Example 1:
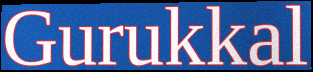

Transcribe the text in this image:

Gurukkal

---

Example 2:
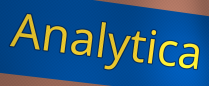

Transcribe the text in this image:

Analytica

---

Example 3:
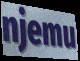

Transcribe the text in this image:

njemu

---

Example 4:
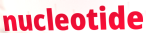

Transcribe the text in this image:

nucleotide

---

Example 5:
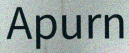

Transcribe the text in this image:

Apurn